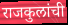
राजकुलांची